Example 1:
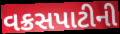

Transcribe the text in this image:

વક્રસપાટીની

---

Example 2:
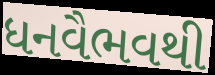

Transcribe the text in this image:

ધનવૈભવથી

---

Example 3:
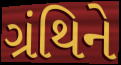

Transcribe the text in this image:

ગ્રંથિને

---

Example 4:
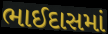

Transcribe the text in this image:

ભાઈદાસમાં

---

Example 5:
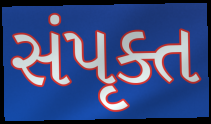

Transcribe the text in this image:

સંપૃક્ત